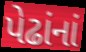
પેઢાંનાં